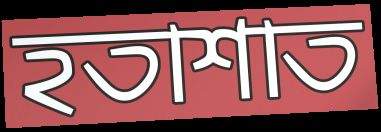
হতাশাত